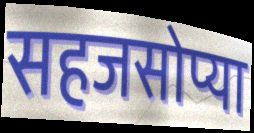
सहजसोप्या